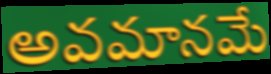
అవమానమే